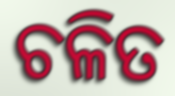
ଚଳିତ